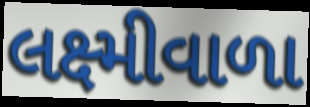
લક્ષ્મીવાળા